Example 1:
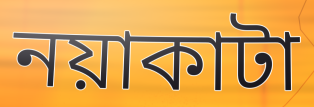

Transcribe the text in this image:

নয়াকাটা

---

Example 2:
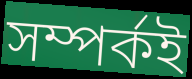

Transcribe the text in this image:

সম্পর্কই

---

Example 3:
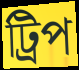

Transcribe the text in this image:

ট্রিপ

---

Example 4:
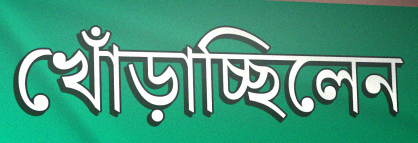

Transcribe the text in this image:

খোঁড়াচ্ছিলেন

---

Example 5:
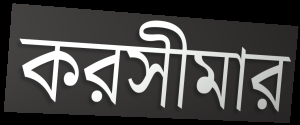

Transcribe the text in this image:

করসীমার